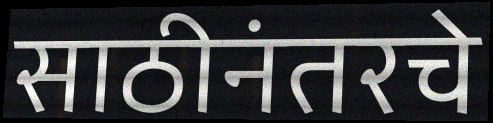
साठीनंतरचे